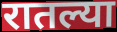
रातल्या